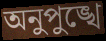
অনুপুঙ্খে